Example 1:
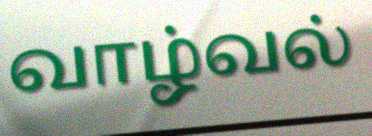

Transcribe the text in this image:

வாழ்வல்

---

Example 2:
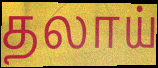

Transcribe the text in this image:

தலாய்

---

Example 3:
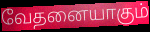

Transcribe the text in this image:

வேதனையாகும்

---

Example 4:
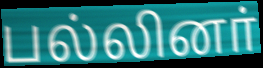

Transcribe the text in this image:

பல்லினர்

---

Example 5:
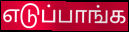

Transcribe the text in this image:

எடுப்பாங்க